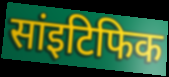
सांइटिफिक